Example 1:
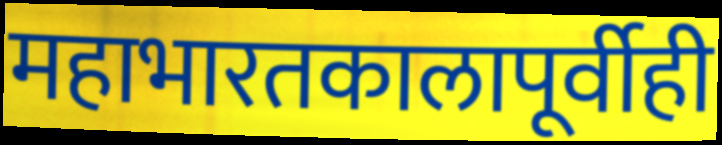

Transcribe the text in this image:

महाभारतकालापूर्वीही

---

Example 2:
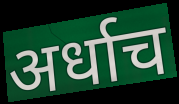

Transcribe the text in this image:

अर्धाच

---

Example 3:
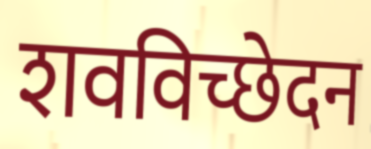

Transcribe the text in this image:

शवविच्छेदन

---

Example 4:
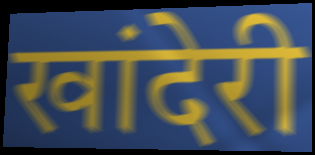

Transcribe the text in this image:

खांदेरी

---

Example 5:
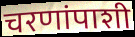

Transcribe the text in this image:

चरणांपाशी